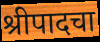
श्रीपादचा